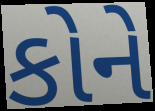
કોને